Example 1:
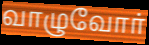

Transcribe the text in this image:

வாழுவோர்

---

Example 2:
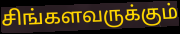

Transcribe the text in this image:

சிங்களவருக்கும்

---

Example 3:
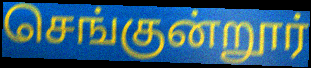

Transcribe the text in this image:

செங்குன்றூர்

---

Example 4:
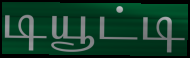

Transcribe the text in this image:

டியூட்டி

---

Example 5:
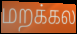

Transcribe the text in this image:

மறக்கல